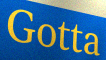
Gotta